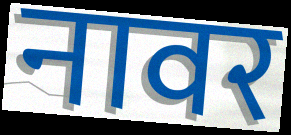
नावर